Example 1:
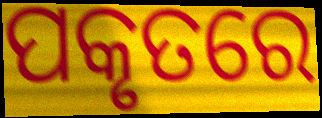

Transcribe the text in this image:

ପକୃତରେ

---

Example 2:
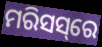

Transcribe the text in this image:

ମରିସସ୍‌ରେ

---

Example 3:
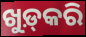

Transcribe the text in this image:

ଖୁଡ଼୍‍କରି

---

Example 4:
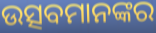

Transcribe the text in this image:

ଉତ୍ସବମାନଙ୍କର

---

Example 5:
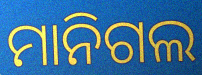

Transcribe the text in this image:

ମାନିଗଲ